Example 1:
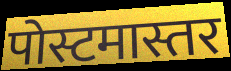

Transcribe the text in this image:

पोस्टमास्तर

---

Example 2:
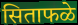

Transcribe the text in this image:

सिताफळे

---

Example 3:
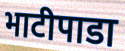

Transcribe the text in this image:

भाटीपाडा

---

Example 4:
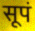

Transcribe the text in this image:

सूपं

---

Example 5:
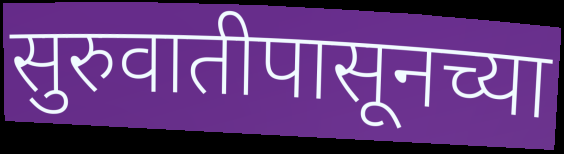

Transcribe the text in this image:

सुरुवातीपासूनच्या